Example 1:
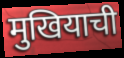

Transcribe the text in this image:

मुखियाची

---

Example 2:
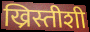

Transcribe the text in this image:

ख्रिस्तीशी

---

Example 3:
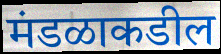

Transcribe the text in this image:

मंडळाकडील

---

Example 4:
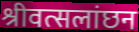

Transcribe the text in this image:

श्रीवत्सलांछन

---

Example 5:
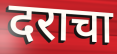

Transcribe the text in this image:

दराचा